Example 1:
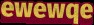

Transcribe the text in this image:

ewewqe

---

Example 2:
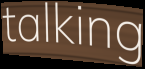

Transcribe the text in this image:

talking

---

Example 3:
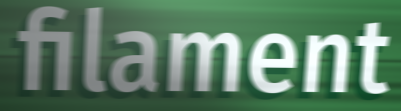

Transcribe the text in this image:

filament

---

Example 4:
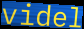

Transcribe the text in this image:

videl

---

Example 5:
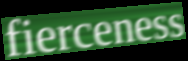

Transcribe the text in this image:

fierceness